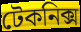
টেকনিক্স